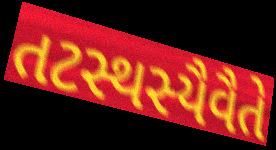
તટસ્થસ્યૈવૈતે